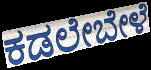
ಕಡಲೇಬೇಳೆ